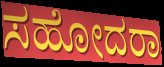
ಸಹೋದರಾ